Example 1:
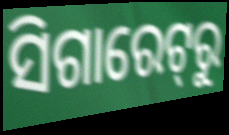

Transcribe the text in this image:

ସିଗାରେଟ୍‌ରୁ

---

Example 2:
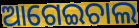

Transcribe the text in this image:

ଆଗେଇଚାଲ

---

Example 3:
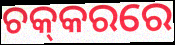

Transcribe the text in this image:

ଚକ୍‌କରରେ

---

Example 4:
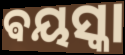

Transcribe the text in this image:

ଵୟସ୍କା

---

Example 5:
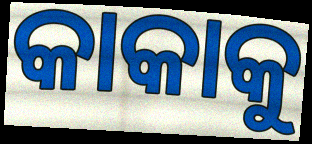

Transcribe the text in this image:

କାକାକୁ